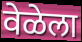
वेळेला